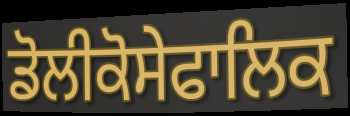
ਡੋਲੀਕੋਸੇਫਾਲਿਕ